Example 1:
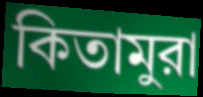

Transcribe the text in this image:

কিতামুরা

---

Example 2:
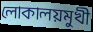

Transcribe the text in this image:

লোকালয়মুখী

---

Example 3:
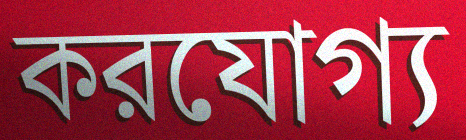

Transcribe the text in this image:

করযোগ্য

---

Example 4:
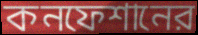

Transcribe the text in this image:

কনফেশানের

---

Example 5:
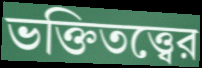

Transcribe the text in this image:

ভক্তিতত্ত্বের